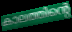
കാലത്തിന്റെ